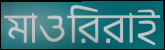
মাওরিরাই